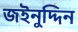
জইনুদ্দিন